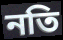
নতি